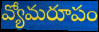
వ్యోమరూపం